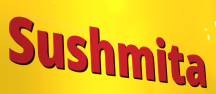
Sushmita